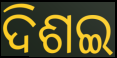
ଦିଶଇ